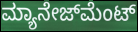
ಮ್ಯಾನೇಜ್‍ಮೆಂಟ್